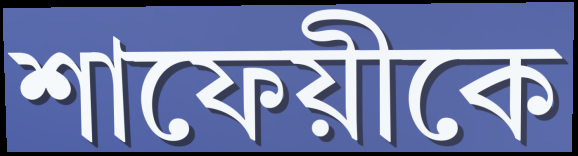
শাফেয়ীকে